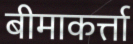
बीमाकर्त्ता